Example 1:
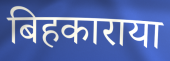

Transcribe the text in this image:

बिहकाराया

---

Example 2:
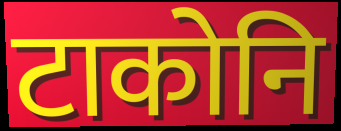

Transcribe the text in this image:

टाकोनि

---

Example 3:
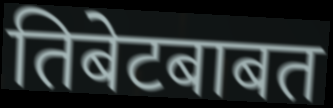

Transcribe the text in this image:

तिबेटबाबत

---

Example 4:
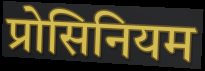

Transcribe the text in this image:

प्रोसिनियम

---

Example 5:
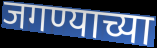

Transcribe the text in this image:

जगण्याच्या